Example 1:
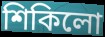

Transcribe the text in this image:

শিকিলো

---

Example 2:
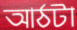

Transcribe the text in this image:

আঠটা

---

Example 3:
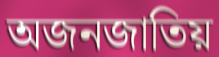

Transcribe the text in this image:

অজনজাতিয়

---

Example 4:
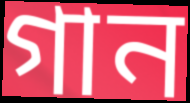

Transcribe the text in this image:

গান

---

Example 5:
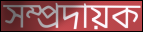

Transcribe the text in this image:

সম্প্ৰদায়ক